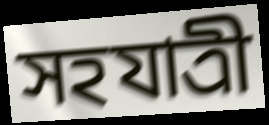
সহযাত্রী